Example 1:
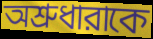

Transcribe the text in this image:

অশ্রুধারাকে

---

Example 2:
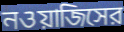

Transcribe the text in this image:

নওয়াজিসের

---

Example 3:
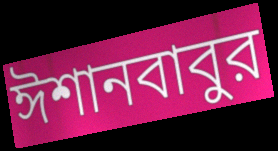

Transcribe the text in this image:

ঈশানবাবুর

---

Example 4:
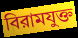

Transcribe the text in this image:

বিরামযুক্ত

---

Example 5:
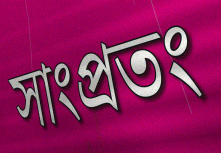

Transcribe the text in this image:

সাংপ্রতং